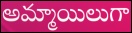
అమ్మాయిలుగా